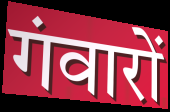
गंवारों